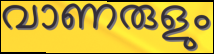
വാണരുളും